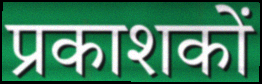
प्रकाशकों